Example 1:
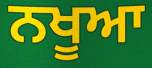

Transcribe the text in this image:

ਨਖੂਆ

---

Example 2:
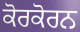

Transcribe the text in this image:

ਕੋਰਕੋਰਨ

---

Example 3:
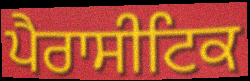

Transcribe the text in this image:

ਪੈਰਾਸੀਟਿਕ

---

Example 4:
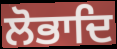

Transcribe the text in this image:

ਲੋਭਾਦਿ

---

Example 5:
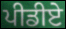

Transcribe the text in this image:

ਪੀਡੀਏ